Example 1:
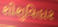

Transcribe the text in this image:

શીશુવિહાર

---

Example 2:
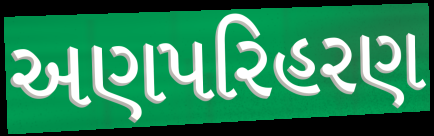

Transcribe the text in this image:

અણપરિહરણ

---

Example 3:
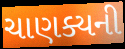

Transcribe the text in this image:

ચાણક્યની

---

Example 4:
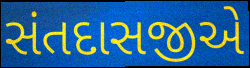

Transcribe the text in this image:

સંતદાસજીએ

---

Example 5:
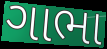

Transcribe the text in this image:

ગાભા